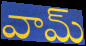
వామ్